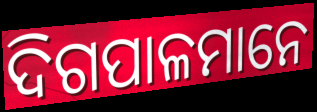
ଦିଗପାଳମାନେ